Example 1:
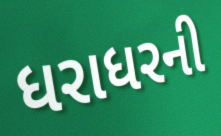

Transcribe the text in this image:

ધરાધરની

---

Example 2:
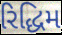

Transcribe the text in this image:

રિદ્ધિમ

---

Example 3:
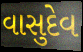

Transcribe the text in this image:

વાસુદેવ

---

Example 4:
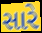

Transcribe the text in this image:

સારે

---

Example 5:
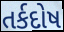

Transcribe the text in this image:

તર્કદોષ